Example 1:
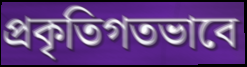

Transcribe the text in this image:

প্রকৃতিগতভাবে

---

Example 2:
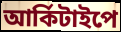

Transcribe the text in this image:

আর্কিটাইপে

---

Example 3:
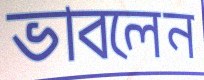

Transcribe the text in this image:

ভাবলেন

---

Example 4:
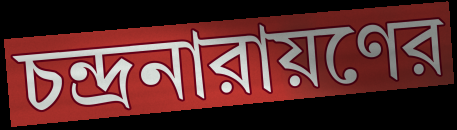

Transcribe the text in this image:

চন্দ্রনারায়ণের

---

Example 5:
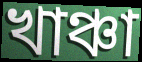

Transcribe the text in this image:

খাঞ্চা